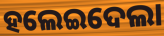
ହଲେଇଦେଲା